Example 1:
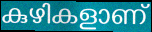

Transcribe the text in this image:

കുഴികളാണ്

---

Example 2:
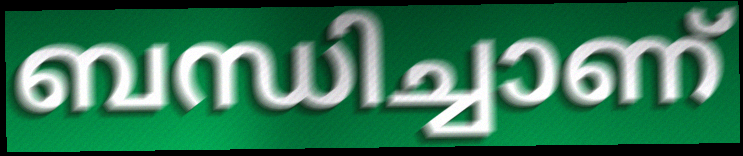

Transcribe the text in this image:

ബന്ധിച്ചാണ്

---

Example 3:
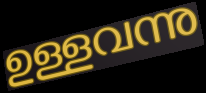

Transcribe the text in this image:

ഉള്ളവന്നു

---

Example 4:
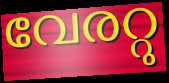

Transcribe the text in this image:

വേരറ്റു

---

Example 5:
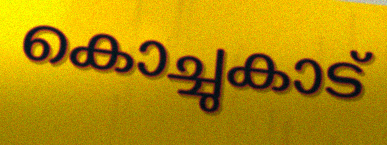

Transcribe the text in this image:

കൊച്ചുകാട്